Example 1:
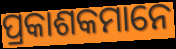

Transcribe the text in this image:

ପ୍ରକାଶକମାନେ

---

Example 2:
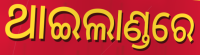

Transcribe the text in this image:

ଥାଇଲାଣ୍ଡରେ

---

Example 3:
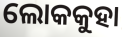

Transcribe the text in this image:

ଲୋକକୁହା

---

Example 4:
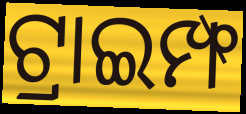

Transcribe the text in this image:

ଟ୍ରାଇମ୍ଫ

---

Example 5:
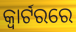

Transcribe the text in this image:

କ୍ୱାର୍ଟରରେ